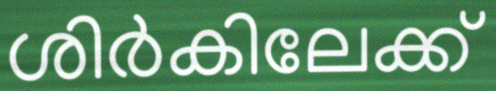
ശിർകിലേക്ക്